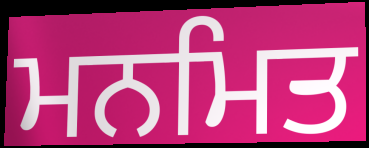
ਮਨਮਿਤ